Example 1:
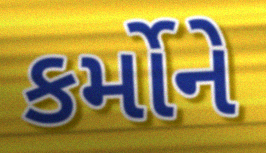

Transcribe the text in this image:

કર્મોને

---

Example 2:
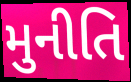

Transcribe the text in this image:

મુનીતિ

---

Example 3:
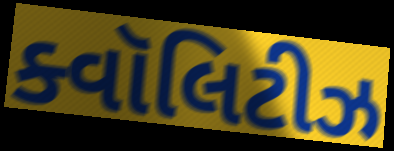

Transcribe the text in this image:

ક્વૉલિટીઝ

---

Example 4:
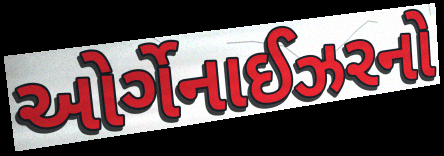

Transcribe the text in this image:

ઓર્ગેનાઈઝરનો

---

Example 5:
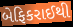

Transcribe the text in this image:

બેફિકરાઈથી